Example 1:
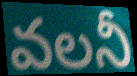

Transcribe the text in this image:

వలనీ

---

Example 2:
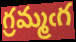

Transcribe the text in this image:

గ్రమ్మఁగ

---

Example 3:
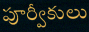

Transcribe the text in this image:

పూర్వీకులు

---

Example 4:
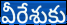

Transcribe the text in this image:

వీరేశుకు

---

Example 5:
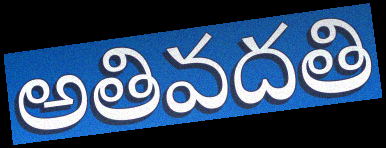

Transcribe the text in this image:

అతివదతి